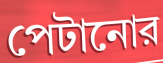
পেটানোর